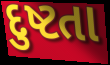
દુષ્ટતા